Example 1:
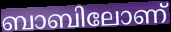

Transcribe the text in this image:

ബാബിലോണ്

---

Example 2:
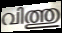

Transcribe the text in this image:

വിത്തു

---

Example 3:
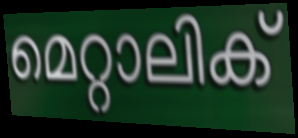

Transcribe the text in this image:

മെറ്റാലിക്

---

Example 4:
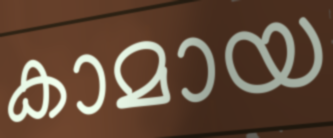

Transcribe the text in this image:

കാമായ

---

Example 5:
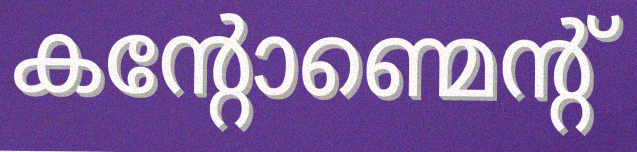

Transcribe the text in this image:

കന്റോണ്മെന്റ്